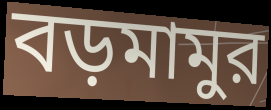
বড়মামুর